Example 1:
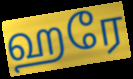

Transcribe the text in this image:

ஹரே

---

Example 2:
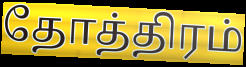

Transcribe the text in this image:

தோத்திரம்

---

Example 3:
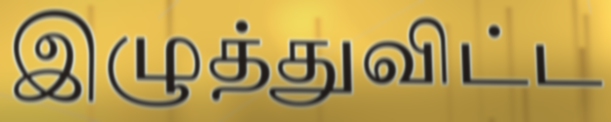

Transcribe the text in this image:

இழுத்துவிட்ட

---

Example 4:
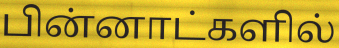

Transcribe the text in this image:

பின்னாட்களில்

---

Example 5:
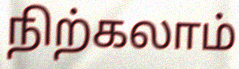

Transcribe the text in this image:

நிற்கலாம்